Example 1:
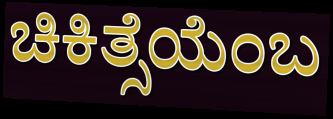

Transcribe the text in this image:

ಚಿಕಿತ್ಸೆಯೆಂಬ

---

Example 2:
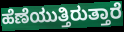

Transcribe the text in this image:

ಹೆಣೆಯುತ್ತಿರುತ್ತಾರೆ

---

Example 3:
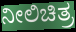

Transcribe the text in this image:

ನೀಲಿಚಿತ್ರ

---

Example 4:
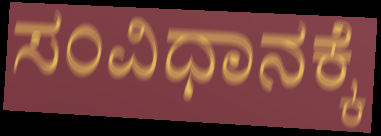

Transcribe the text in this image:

ಸಂವಿಧಾನಕ್ಕೆ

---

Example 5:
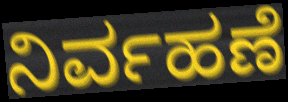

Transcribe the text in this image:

ನಿರ್ವಹಣೆ